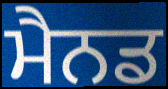
ਮੈਨਡ